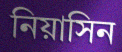
নিয়াসিন